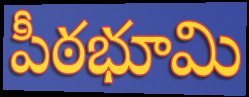
పీఠభూమి